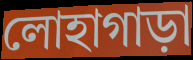
লোহাগাড়া